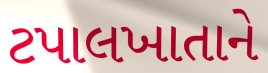
ટપાલખાતાને